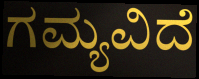
ಗಮ್ಯವಿದೆ